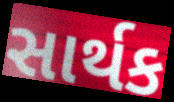
સાર્થક